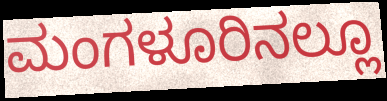
ಮಂಗಳೂರಿನಲ್ಲೂ